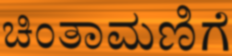
ಚಿಂತಾಮಣಿಗೆ